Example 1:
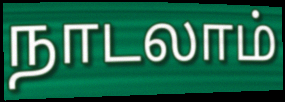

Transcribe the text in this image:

நாடலாம்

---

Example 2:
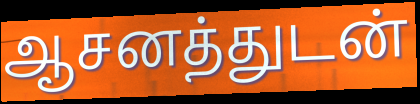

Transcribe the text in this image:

ஆசனத்துடன்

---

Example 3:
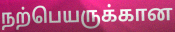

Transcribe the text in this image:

நற்பெயருக்கான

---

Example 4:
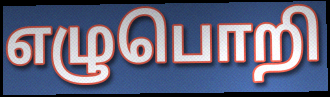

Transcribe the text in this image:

எழுபொறி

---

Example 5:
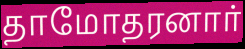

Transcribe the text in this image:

தாமோதரனார்